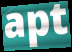
apt